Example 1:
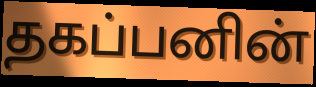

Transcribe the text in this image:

தகப்பனின்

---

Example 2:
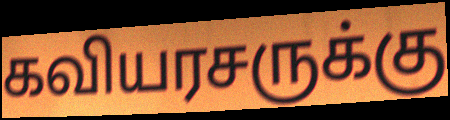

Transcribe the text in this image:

கவியரசருக்கு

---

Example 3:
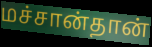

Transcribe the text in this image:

மச்சான்தான்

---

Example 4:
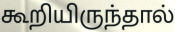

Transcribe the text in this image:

கூறியிருந்தால்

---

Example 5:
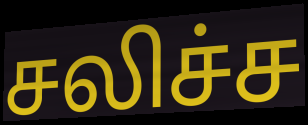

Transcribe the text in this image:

சலிச்ச